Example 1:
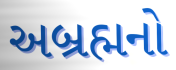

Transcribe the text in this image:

અબ્રહ્મનો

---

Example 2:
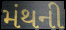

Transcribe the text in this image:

મંથની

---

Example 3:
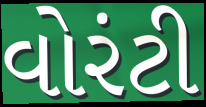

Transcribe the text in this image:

વોરંટી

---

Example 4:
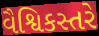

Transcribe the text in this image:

વૈશ્વિકસ્તરે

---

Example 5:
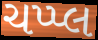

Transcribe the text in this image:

ચપ્પ્લ